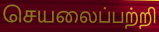
செயலைப்பற்றி